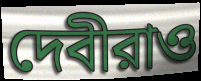
দেবীরাও